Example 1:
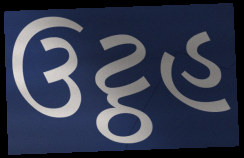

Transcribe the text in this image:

ઉટ્ઠહ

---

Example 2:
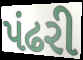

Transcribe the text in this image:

પંઢરી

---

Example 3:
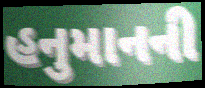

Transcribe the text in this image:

હનુમાનની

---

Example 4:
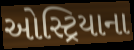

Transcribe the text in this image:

ઓસ્ટ્રિયાના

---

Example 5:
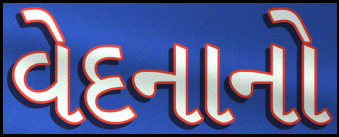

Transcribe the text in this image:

વેદનાનો